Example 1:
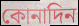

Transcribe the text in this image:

কোনাদিন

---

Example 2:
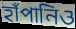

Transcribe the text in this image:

হাঁপানিও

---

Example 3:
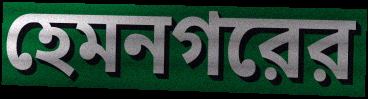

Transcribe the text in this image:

হেমনগরের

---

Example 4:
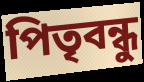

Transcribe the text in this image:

পিতৃবন্ধু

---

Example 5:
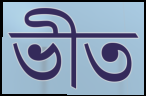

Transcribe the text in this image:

ভীত